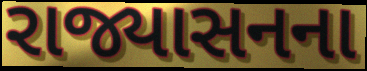
રાજ્યાસનના